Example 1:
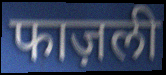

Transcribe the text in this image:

फाज़ली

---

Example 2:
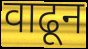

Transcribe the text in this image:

वाढून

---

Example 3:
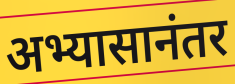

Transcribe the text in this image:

अभ्यासानंतर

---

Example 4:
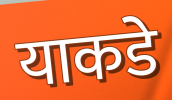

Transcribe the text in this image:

याकडे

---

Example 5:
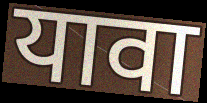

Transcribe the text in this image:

यावा